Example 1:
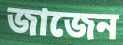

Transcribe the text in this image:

জাজেন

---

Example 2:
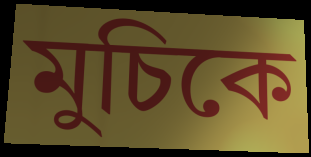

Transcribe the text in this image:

মুচিকে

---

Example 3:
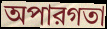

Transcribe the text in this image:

অপারগতা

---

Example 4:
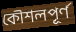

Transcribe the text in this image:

কৌশলপূর্ণ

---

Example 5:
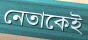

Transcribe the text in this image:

নেতাকেই